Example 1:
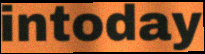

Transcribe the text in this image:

intoday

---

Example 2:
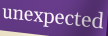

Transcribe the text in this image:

unexpected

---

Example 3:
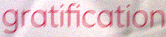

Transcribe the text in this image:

gratification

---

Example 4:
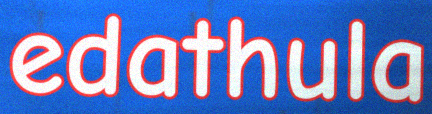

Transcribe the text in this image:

edathula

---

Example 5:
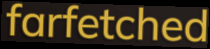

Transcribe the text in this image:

farfetched